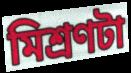
মিশ্রণটা